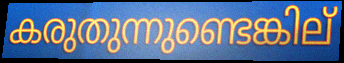
കരുതുന്നുണ്ടെങ്കില്